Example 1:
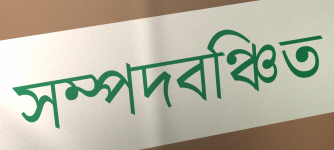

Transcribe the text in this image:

সম্পদবঞ্চিত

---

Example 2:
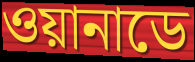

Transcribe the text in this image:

ওয়ানাডে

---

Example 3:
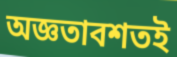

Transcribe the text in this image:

অজ্ঞতাবশতই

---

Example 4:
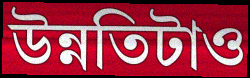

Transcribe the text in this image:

উন্নতিটাও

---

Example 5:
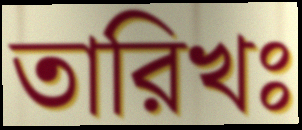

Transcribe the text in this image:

তারিখঃ